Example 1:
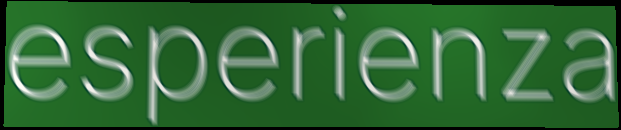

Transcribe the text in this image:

esperienza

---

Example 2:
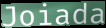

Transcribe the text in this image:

Joiada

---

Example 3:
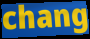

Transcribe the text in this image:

chang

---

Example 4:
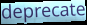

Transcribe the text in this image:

deprecate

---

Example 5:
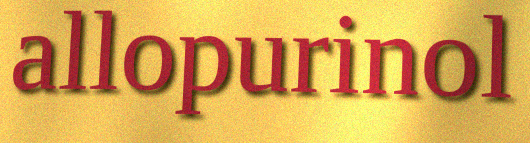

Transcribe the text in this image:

allopurinol